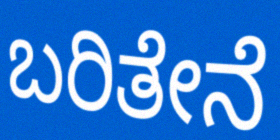
ಬರಿತೇನೆ